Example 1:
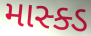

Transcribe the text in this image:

માસ્ક્ડ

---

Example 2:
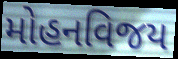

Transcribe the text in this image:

મોહનવિજય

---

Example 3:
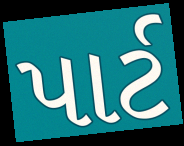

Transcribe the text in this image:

પાર્ટ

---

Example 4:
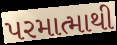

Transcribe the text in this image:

પરમાત્માથી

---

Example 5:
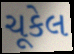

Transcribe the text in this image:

ચૂકેલ